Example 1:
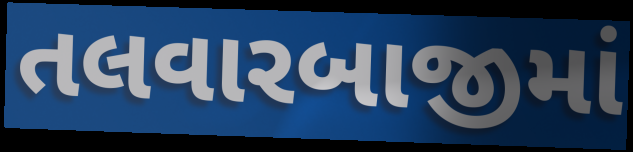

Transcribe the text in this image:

તલવારબાજીમાં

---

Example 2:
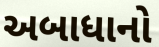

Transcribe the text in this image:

અબાધાનો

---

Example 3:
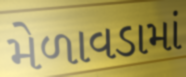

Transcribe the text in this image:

મેળાવડામાં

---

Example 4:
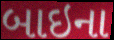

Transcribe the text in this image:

બાઇના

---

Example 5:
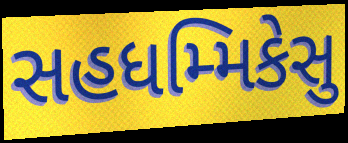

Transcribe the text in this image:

સહધમ્મિકેસુ